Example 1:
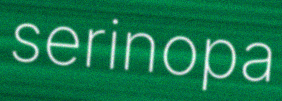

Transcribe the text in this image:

serinopa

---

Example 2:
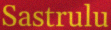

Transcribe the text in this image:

Sastrulu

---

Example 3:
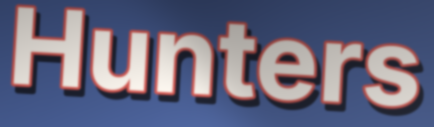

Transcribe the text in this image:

Hunters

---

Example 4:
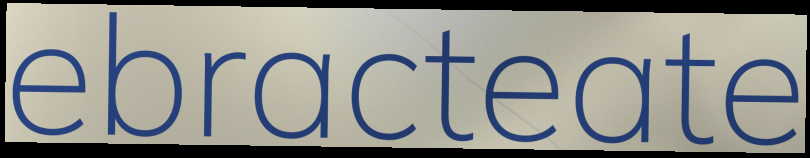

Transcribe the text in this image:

ebracteate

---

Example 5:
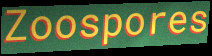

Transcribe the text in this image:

Zoospores